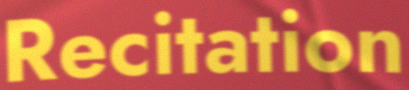
Recitation